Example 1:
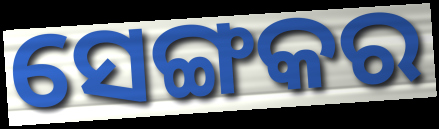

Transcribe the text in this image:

ସେଙ୍ଗକର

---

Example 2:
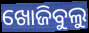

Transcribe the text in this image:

ଖୋଜିବୁଲୁ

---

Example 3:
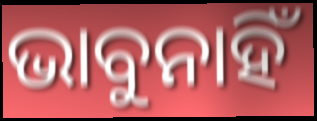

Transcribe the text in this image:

ଭାବୁନାହିଁ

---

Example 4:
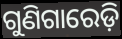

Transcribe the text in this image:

ଗୁଣିଗାରେଡ଼ି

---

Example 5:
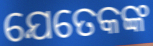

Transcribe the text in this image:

ଯେତେକଙ୍କ